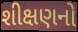
શીક્ષણનો